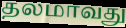
தலமாவது